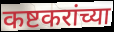
कष्टकरांच्या